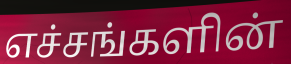
எச்சங்களின்